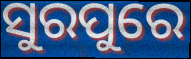
ସୁରପୁରେ